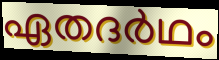
ഏതദർഥം